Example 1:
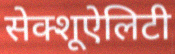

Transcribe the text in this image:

सेक्शूऐलिटी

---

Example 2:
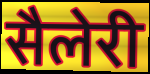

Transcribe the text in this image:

सैलेरी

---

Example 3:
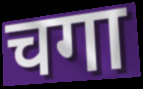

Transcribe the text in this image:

चगा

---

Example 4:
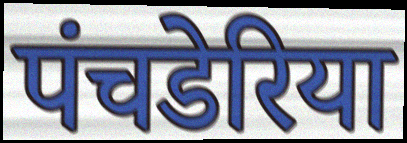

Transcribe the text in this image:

पंचडेरिया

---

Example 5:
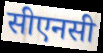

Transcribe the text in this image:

सीएनसी